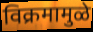
विक्रमामुळे